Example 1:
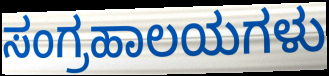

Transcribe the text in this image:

ಸಂಗ್ರಹಾಲಯಗಳು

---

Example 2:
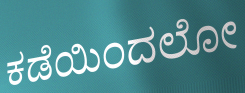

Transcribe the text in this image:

ಕಡೆಯಿಂದಲೋ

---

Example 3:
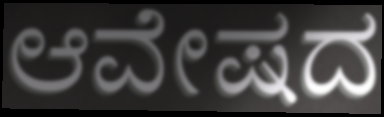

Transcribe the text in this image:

ಆವೇಷದ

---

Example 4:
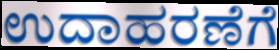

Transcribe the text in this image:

ಉದಾಹರಣೆಗೆ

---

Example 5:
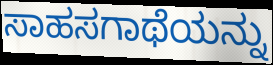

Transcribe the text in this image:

ಸಾಹಸಗಾಥೆಯನ್ನು